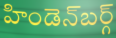
హిండెన్‌బర్గ్